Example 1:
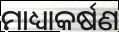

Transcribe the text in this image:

ମାଧ୍ୟାକର୍ଷଣ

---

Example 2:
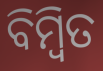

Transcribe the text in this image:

ବିମ୍ବିତ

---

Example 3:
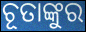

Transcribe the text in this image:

ଚୂତାଙ୍କୁର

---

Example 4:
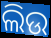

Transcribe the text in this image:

ଲିଉ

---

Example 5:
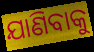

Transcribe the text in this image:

ଯାଣିବାକୁ